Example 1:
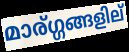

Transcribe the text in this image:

മാര്ഗ്ഗങ്ങളില്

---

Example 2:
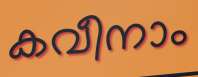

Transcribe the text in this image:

കവീനാം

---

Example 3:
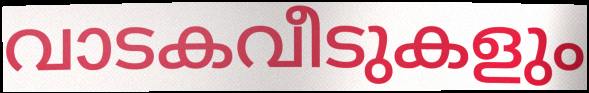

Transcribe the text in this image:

വാടകവീടുകളും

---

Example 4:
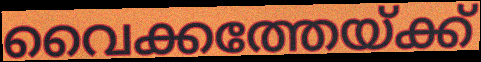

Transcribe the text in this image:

വൈക്കത്തേയ്ക്ക്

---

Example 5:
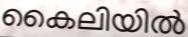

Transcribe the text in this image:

കൈലിയിൽ